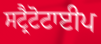
ਸਟ੍ਰੈਟੋਟਾਈਪ